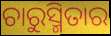
ଚାରୁସ୍ମିତାର